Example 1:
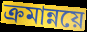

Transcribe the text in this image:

ক্রমান্নয়ে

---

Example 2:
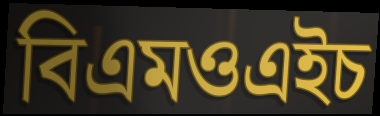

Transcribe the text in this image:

বিএমওএইচ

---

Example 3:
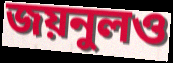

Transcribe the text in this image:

জয়নুলও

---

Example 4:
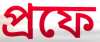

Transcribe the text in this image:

প্রফে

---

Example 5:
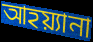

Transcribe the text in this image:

আহয়্যানা